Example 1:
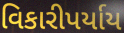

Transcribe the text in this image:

વિકારીપર્યાય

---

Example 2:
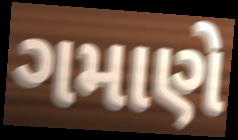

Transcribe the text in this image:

ગમાણે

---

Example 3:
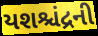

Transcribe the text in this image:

યશશ્ચંદ્રની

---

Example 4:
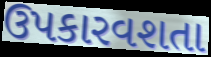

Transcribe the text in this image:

ઉપકારવશતા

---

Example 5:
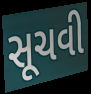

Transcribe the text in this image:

સૂચવી